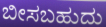
ಬೀಸಬಹುದು